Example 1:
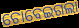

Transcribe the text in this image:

ଚୋବେଇଗଲା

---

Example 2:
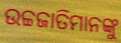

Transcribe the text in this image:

ଉଚ୍ଚଜାତିମାନଙ୍କୁ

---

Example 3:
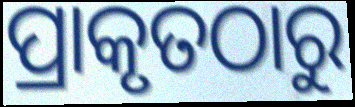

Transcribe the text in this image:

ପ୍ରାକୃତଠାରୁ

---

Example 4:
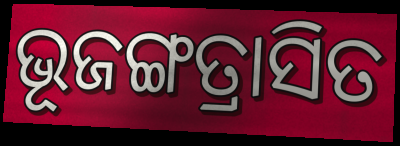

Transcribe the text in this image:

ଭୂଜଙ୍ଗତ୍ରାସିତ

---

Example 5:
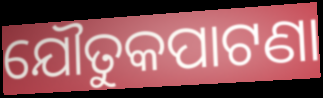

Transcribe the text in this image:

ଯୌତୁକପାଟଣା